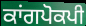
ਕਾਂਗਪੋਕਪੀ